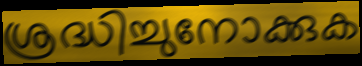
ശ്രദ്ധിച്ചുനോക്കുക